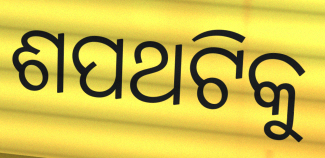
ଶପଥଟିକୁ